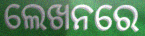
ଲେଖନରେ